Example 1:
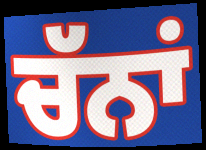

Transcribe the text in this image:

ਚੱਨਾਂ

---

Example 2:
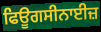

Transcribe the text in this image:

ਫਿਊਗਸੀਨਾਈਜ਼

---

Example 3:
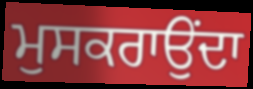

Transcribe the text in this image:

ਮੁਸਕਰਾਉਂਦਾ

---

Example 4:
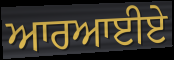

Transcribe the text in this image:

ਆਰਆਈਏ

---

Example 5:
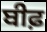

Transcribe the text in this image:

ਬੀਫ਼